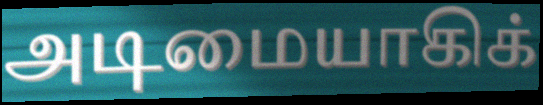
அடிமையாகிக்